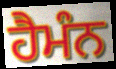
ਹੈਮੰਨ